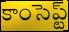
కాంసెప్ట్